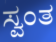
ಸ್ವಂತ